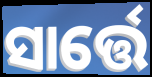
ସାର୍ତ୍ତେ